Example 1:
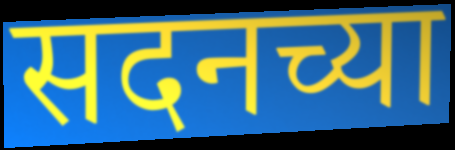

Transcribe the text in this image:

सदनच्या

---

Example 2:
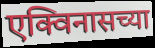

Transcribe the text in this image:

एक्विनासच्या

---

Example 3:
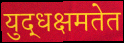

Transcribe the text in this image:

युद्धक्षमतेत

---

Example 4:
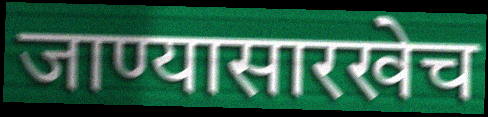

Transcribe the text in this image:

जाण्यासारखेच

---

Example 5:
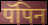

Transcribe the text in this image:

पॅपिन